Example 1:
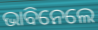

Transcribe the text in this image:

ଭାବିନେଲେ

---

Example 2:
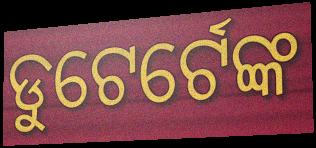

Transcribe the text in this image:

ଡୁଟେର୍ଟେଙ୍କ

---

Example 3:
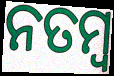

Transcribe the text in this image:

ନତମ୍ବ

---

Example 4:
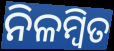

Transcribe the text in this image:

ନିଳମ୍ବିତ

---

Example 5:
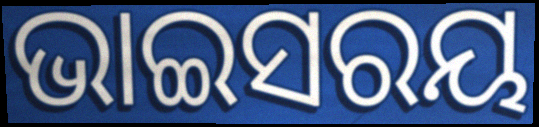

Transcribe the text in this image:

ଭାଇସରୟ